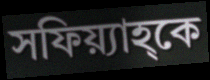
সফিয়্যাহ্কে